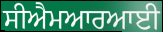
ਸੀਐਮਆਰਆਈ